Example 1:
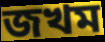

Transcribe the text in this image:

জখম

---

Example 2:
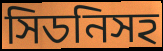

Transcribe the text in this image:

সিডনিসহ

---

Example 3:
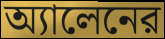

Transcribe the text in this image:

অ্যালেনের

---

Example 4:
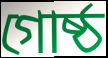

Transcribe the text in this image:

গোষ্ঠ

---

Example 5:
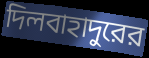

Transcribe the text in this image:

দিলবাহাদুরের